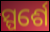
ସ୍ପର୍ଶେ